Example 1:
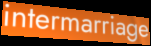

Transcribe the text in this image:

intermarriage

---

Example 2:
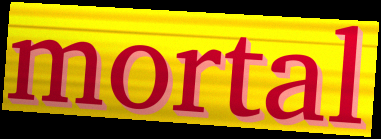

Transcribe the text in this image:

mortal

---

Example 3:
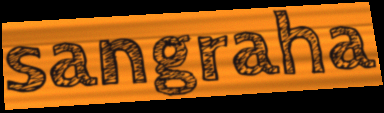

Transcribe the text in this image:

sangraha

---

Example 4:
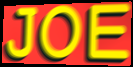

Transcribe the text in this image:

JOE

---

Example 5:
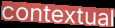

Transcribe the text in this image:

contextual